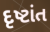
દૃષ્ટાંત